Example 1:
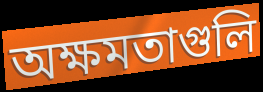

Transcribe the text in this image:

অক্ষমতাগুলি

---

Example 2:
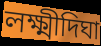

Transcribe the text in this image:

লক্ষ্মীদিঘা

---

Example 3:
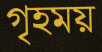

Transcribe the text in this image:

গৃহময়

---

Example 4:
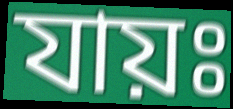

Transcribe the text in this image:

যায়ঃ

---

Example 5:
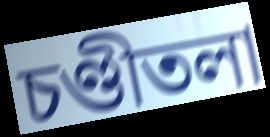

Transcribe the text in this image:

চণ্ডীতলা